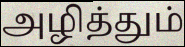
அழித்தும்